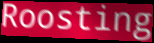
Roosting